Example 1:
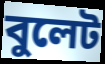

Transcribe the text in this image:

বুলেট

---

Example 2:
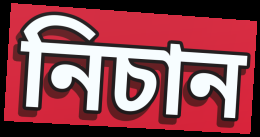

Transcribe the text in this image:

নিচান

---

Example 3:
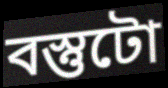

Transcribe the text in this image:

বস্তুটো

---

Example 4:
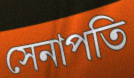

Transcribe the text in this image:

সেনাপতি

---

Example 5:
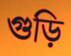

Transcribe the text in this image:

গুড়ি